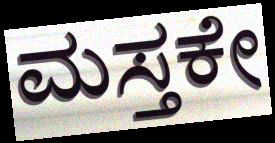
ಮಸ್ತಕೇ